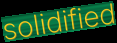
solidified